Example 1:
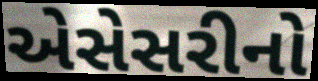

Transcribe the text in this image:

એસેસરીનો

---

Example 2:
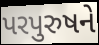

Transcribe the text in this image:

પરપુરુષને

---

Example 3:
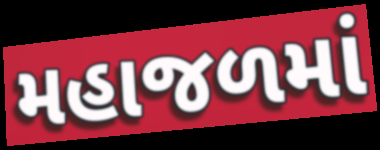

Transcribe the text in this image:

મહાજળમાં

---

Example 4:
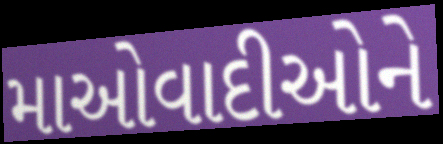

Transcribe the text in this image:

માઓવાદીઓને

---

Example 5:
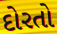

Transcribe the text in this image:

દોરતો